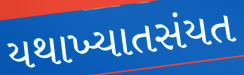
યથાખ્યાતસંયત